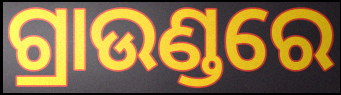
ଗ୍ରାଉଣ୍ଡରେ